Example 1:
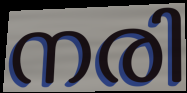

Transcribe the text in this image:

നരി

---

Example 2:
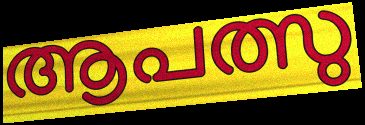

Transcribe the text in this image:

ആപത്സു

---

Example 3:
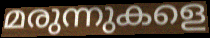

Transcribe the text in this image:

മരുന്നുകളെ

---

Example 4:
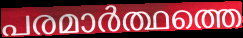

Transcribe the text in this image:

പരമാർത്ഥത്തെ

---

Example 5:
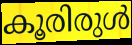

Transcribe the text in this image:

കൂരിരുൾ